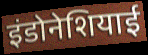
इंडोनेशियाई